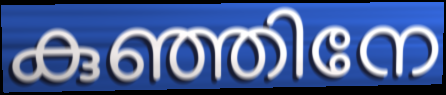
കുഞ്ഞിനേ